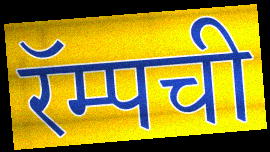
रॅम्पची